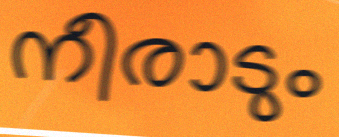
നീരാടും